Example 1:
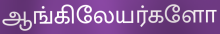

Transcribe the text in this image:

ஆங்கிலேயர்களோ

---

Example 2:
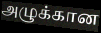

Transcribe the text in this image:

அழுக்கான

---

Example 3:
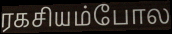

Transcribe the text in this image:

ரகசியம்போல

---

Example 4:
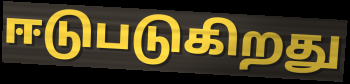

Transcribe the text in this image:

ஈடுபடுகிறது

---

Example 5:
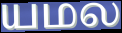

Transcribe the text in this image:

யமல